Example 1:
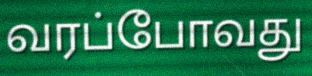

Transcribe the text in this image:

வரப்போவது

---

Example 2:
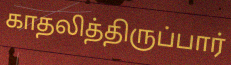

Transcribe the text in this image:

காதலித்திருப்பார்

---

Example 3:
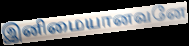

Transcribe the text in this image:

இனிமையானவனே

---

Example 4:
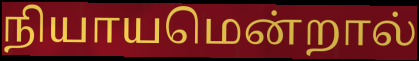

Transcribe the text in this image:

நியாயமென்றால்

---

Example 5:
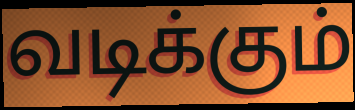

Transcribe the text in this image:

வடிக்கும்